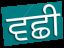
ਵਛੀ